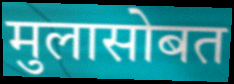
मुलासोबत